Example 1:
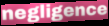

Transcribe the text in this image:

negligence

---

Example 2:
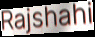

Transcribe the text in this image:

Rajshahi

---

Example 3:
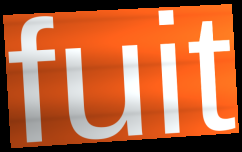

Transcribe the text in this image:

fuit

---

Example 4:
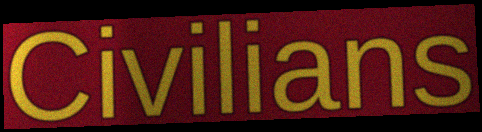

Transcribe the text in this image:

Civilians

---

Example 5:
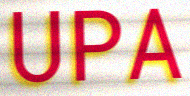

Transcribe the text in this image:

UPA